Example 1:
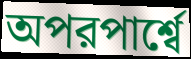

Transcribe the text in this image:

অপরপার্শ্বে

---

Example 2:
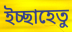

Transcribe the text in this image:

ইচ্ছাহেতু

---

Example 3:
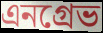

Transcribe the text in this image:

এনগ্রেভ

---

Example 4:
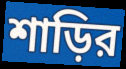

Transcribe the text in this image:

শাড়ির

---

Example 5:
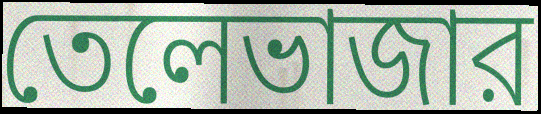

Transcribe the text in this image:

তেলেভাজার